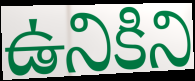
ఉనికిని